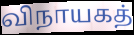
விநாயகத்